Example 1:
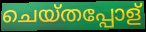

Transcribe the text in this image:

ചെയ്തപ്പോള്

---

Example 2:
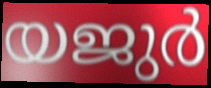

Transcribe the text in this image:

യജുർ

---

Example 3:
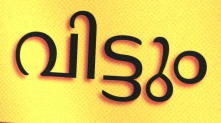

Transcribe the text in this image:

വിട്ടും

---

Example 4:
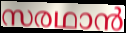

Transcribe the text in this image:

സരഥാൻ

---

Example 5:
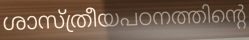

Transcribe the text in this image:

ശാസ്ത്രീയപഠനത്തിന്റെ